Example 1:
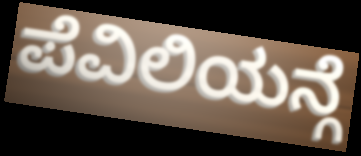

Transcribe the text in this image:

ಪೆವಿಲಿಯನ್ಗೆ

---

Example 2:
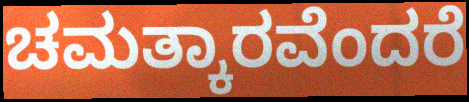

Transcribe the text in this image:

ಚಮತ್ಕಾರವೆಂದರೆ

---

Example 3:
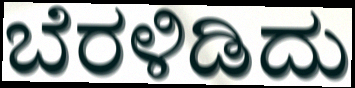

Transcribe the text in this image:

ಬೆರಳಿಡಿದು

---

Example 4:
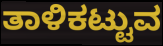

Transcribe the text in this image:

ತಾಳಿಕಟ್ಟುವ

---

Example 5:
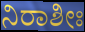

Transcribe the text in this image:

ನಿರಾಶೀಃ